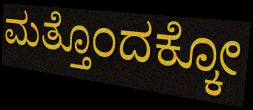
ಮತ್ತೊಂದಕ್ಕೋ